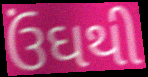
ઉંઘથી